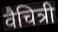
वैचित्री